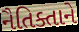
નૈતિક્તાને